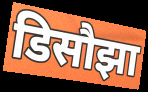
डिसौझा